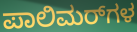
ಪಾಲಿಮರ್‌ಗಳ